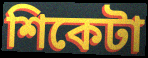
শিকেটা